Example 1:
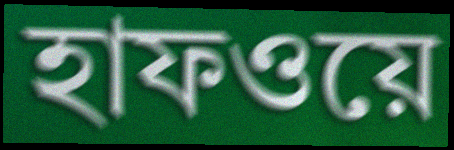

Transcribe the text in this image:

হাফওয়ে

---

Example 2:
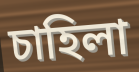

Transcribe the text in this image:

চাহিলা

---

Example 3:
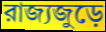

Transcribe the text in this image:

রাজ্যজুড়ে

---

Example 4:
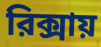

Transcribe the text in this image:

রিক্সায়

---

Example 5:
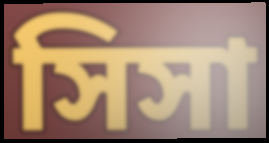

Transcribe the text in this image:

সিসা